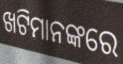
ଖଟିମାନଙ୍କରେ